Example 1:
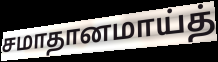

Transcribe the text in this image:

சமாதானமாய்த்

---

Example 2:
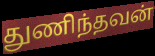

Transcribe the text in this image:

துணிந்தவன்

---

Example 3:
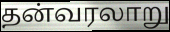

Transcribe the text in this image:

தன்வரலாறு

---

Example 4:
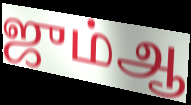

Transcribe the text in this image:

ஜும்ஆ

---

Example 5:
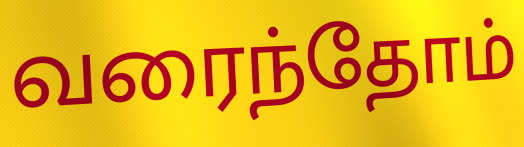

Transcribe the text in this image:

வரைந்தோம்